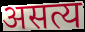
असत्य